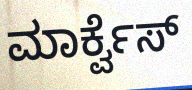
ಮಾರ್ಕ್ವೆಸ್